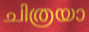
ചിത്രയാ